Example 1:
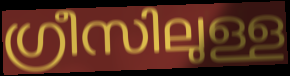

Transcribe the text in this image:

ഗ്രീസിലുള്ള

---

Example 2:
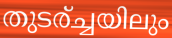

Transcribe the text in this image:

തുടര്ച്ചയിലും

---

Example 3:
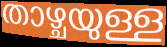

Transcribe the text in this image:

താഴ്ചയുള്ള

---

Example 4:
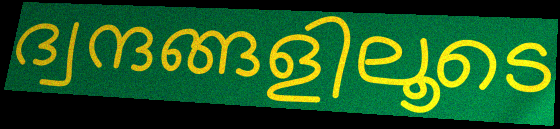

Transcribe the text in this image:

ദ്വന്ദങ്ങളിലൂടെ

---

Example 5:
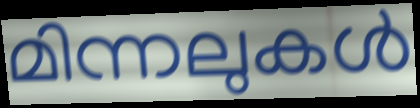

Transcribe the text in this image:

മിന്നലുകൾ